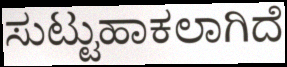
ಸುಟ್ಟುಹಾಕಲಾಗಿದೆ